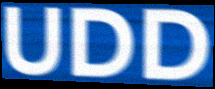
UDD